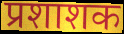
प्रशाशक